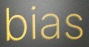
bias